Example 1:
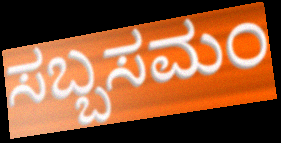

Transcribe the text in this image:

ಸಬ್ಬಸಮಂ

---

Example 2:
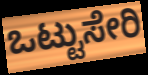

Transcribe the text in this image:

ಒಟ್ಟುಸೇರಿ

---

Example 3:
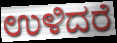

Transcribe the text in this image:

ಉಳಿದರೆ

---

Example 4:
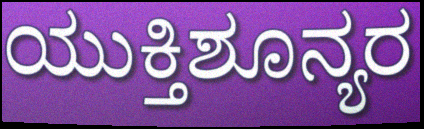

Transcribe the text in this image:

ಯುಕ್ತಿಶೂನ್ಯರ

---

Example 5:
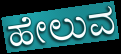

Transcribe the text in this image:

ಹೇಲುವ